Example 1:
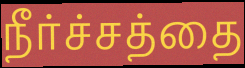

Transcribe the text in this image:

நீர்ச்சத்தை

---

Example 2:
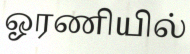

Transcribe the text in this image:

ஓரணியில்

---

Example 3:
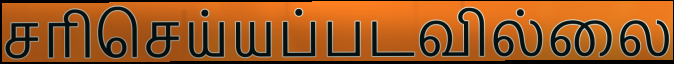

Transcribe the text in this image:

சரிசெய்யப்படவில்லை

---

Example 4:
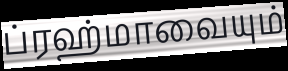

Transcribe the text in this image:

ப்ரஹ்மாவையும்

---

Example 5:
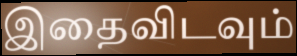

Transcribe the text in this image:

இதைவிடவும்